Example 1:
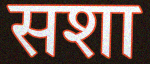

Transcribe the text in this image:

सशा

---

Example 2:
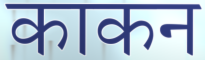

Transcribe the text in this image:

काकन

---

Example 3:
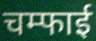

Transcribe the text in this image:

चम्फाई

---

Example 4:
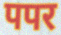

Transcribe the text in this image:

पपर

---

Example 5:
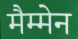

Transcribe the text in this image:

मैम्मेन